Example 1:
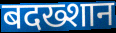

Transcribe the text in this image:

बदख्शान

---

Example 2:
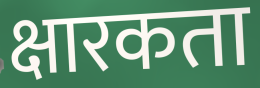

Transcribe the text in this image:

क्षारकता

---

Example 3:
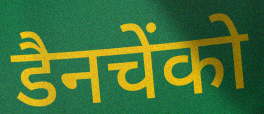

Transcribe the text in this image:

डैनचेंको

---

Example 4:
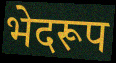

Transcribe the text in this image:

भेदरूप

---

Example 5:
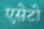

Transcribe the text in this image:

एसेटो